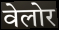
वेलोर